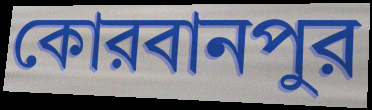
কোরবানপুর